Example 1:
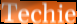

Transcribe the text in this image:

Techie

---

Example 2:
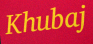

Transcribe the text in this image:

Khubaj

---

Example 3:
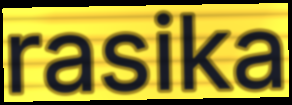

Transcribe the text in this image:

rasika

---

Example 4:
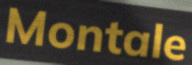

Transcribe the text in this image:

Montale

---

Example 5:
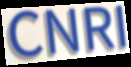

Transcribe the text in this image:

CNRI